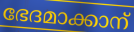
ഭേദമാക്കാന്